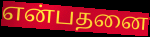
என்பதனை